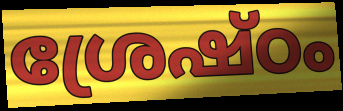
ശ്രേഷ്ഠം